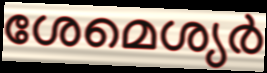
ശേമെശ്യർ